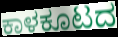
ಕಾಳಕೂಟದ